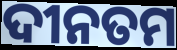
ଦୀନତମ